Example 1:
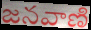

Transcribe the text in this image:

జనవాణి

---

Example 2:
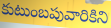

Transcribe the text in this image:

కుటుంబపువారికిని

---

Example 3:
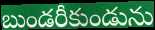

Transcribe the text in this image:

బుండరీకుండును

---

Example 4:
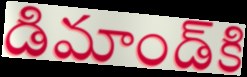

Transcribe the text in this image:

డిమాండ్‌కి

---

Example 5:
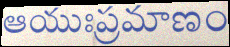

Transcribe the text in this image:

ఆయుఃప్రమాణం